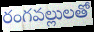
రంగవల్లులతో